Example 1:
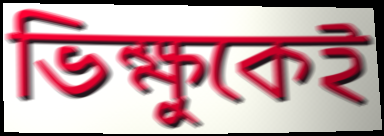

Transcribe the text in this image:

ভিক্ষুকেই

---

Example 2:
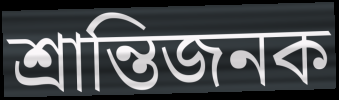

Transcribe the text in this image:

শ্রান্তিজনক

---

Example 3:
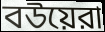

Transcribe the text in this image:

বউয়েরা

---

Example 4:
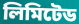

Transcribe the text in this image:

লিমিটেড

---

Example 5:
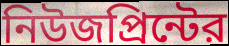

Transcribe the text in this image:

নিউজপ্রিন্টের